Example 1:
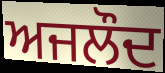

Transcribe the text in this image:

ਅਜਲੌਦ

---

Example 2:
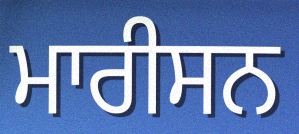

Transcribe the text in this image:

ਮਾਰੀਸਨ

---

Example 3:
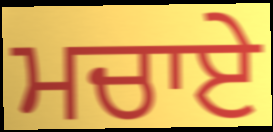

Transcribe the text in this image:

ਮਚਾਏ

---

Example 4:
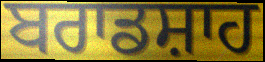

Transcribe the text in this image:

ਬਰਾਡਸ਼ਾਹ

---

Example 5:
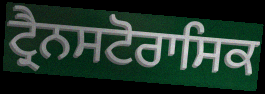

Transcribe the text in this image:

ਟ੍ਰੈਨਸਟੋਰਾਸਿਕ